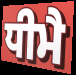
ਧੀਮੈ